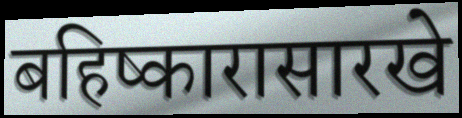
बहिष्कारासारखे